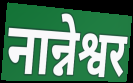
नान्नेश्वर